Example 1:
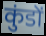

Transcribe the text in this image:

कुंडों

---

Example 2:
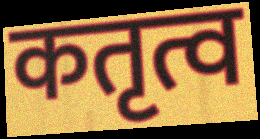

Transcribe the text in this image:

कतृत्व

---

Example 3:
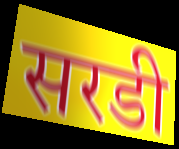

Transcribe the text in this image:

सरडी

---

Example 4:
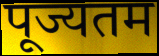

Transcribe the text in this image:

पूज्यतम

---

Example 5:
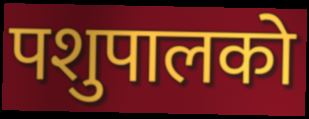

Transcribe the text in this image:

पशुपालको